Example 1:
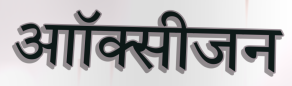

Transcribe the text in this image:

आॉक्सीजन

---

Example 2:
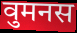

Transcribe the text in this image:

वुमनस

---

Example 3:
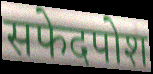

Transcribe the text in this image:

सफेदपोश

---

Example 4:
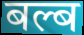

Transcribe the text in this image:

बल्‍ब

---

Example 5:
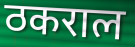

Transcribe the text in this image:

ठकराल